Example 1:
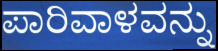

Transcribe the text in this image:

ಪಾರಿವಾಳವನ್ನು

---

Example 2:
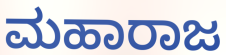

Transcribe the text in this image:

ಮಹಾರಾಜ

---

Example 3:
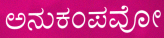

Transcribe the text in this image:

ಅನುಕಂಪವೋ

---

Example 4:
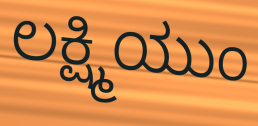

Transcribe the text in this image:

ಲಕ್ಷ್ಮಿಯುಂ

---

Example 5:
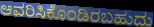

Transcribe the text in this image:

ಆವರಿಸಿಕೊಂಡಿರಬಹುದು